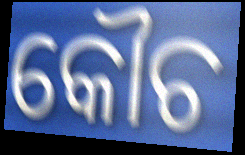
କୌଚ